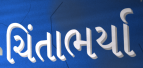
ચિંતાભર્યા